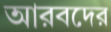
আরবদের